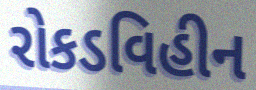
રોકડવિહીન